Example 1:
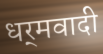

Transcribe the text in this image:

धर्मवादी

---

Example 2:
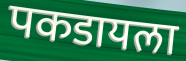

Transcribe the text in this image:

पकडायला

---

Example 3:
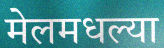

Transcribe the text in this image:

मेलमधल्या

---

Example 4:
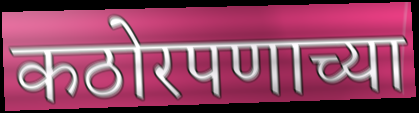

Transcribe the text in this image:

कठोरपणाच्या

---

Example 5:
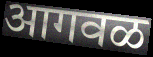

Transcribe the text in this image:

आगवळ